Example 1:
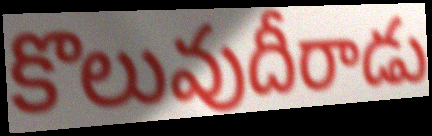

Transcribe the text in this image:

కొలువుదీరాడు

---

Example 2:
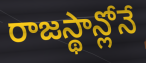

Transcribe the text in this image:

రాజస్థాన్లోనే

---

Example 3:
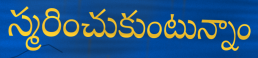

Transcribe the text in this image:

స్మరించుకుంటున్నాం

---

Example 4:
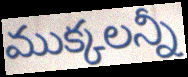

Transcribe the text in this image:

ముక్కలన్నీ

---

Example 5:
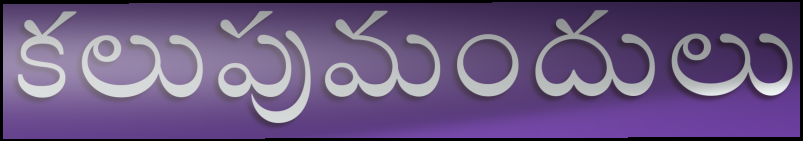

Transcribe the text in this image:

కలుపుమందులు